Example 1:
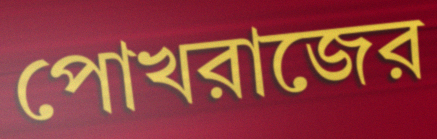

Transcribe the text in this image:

পোখরাজের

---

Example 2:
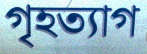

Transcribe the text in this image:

গৃহত্যাগ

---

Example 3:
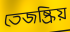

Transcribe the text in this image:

তেজষ্ক্রিয়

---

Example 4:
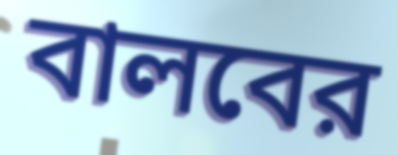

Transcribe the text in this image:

বালবের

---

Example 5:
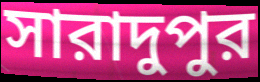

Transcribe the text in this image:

সারাদুপুর